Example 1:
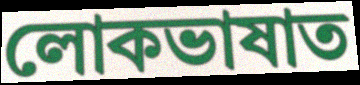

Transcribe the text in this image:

লোকভাষাত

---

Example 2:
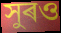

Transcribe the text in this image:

সুৰও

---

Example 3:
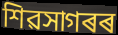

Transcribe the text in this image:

শিৱসাগৰৰ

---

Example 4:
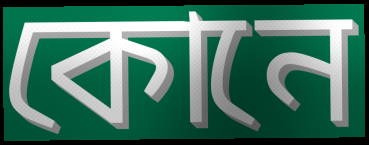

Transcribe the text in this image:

কোনে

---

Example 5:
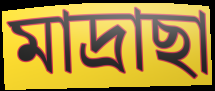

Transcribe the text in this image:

মাদ্ৰাছা